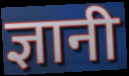
ज्ञानी